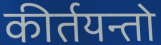
कीर्तयन्तो